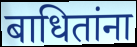
बाधितांना